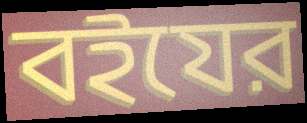
বইযের